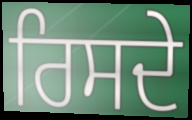
ਰਿਸਦੇ